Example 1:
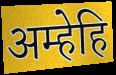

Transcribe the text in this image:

अम्हेहि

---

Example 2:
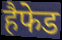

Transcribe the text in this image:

हैफेड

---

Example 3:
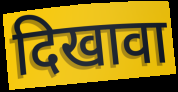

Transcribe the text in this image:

दिखावा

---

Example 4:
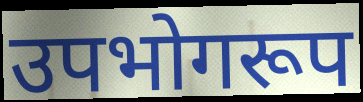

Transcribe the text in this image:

उपभोगरूप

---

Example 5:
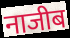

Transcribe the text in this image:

नाजीब